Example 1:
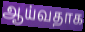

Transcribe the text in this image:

ஆய்வதாக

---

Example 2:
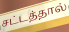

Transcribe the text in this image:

சட்டத்தால்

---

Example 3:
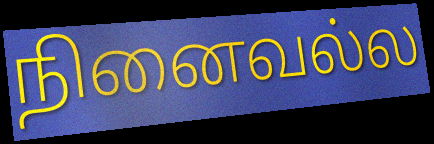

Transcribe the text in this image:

நினைவல்ல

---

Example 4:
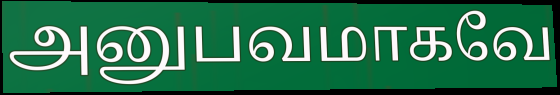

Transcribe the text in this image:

அனுபவமாகவே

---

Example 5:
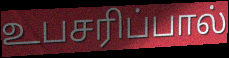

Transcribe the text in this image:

உபசரிப்பால்